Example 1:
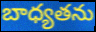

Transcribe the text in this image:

బాధ్యతను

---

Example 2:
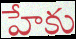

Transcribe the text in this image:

హేకు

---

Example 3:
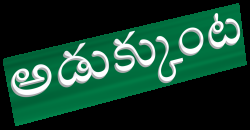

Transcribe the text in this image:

అడుక్కుంట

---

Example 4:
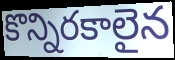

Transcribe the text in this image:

కొన్నిరకాలైన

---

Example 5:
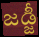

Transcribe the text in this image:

జడ్జీ